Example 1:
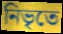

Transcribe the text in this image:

নিভৃতে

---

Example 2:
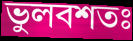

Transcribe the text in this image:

ভুলবশতঃ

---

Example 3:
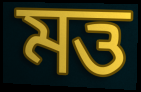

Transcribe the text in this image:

মত্ত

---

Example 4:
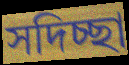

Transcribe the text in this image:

সদিচ্ছা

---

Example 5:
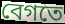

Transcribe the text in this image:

বেগতে